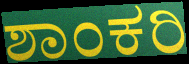
ಶಾಂಕರಿ